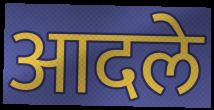
आदले